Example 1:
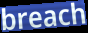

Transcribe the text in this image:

breach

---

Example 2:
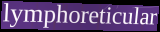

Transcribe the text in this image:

lymphoreticular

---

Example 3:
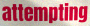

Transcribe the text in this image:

attempting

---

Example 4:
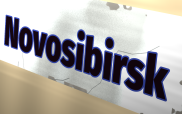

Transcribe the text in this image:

Novosibirsk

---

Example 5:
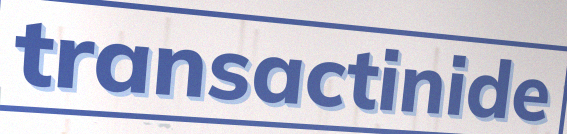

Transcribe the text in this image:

transactinide